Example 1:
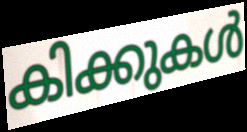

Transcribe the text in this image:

കിക്കുകൾ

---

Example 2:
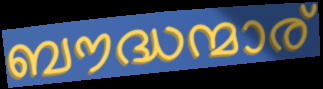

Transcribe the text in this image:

ബൗദ്ധന്മാര്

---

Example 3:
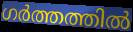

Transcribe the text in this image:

ഗർത്തത്തിൽ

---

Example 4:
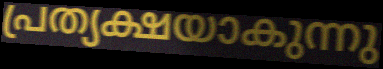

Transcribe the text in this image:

പ്രത്യക്ഷയാകുന്നു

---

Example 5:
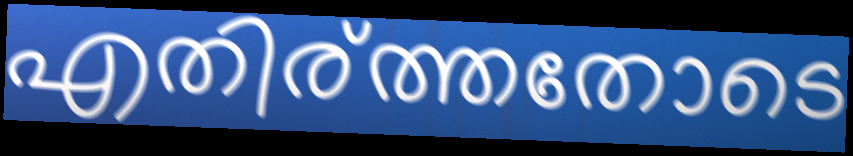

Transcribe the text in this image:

എതിര്ത്തതോടെ